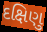
દક્ષિણુ